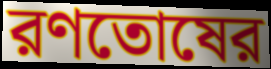
রণতোষের